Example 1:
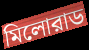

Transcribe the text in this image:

মিলোরাড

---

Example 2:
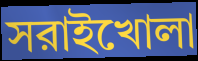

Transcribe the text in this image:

সরাইখোলা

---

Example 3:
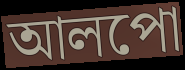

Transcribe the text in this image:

আলপো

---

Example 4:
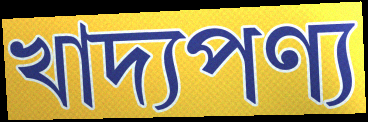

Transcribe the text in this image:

খাদ্যপণ্য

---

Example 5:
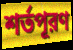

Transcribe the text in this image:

শর্তপূরণ